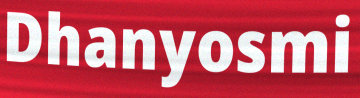
Dhanyosmi